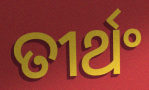
ତୀର୍ଥଂ